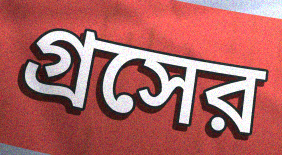
গ্রসের